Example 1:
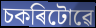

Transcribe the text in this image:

চকৰিটোৱে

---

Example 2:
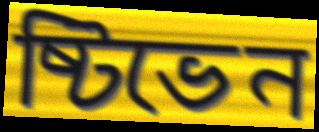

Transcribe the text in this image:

ষ্টিভেন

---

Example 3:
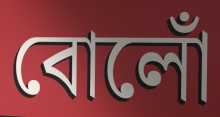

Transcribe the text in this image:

বোলোঁ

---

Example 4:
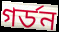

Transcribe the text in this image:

গৰ্ডন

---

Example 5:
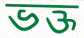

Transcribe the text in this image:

ভক্ত